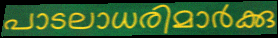
പാടലാധരിമാർക്കു